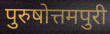
पुरुषोत्तमपुरी